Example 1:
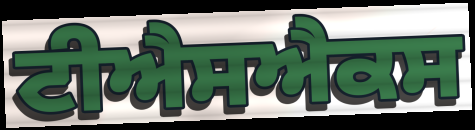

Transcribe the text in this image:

ਟੀਐਸਐਕਸ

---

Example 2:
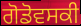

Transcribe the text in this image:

ਗੋਡੋਵਸਕੀ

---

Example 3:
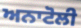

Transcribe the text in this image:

ਅਨਾਟੋਲੀ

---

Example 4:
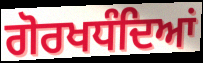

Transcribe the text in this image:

ਗੋਰਖਧੰਦਿਆਂ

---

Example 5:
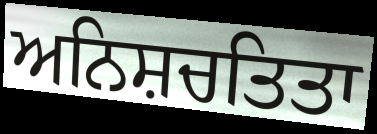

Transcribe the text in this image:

ਅਨਿਸ਼ਚਤਿਤਾ